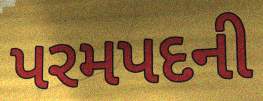
પરમપદની